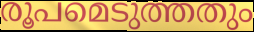
രൂപമെടുത്തതും